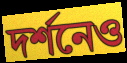
দর্শনেও